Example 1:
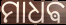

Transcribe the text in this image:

ମାଧଵ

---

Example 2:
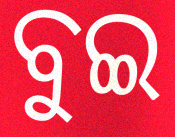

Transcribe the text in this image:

ବୁଇ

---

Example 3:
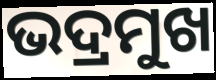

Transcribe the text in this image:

ଭଦ୍ରମୁଖ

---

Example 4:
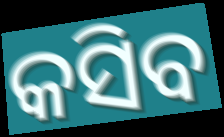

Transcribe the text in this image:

କସିବ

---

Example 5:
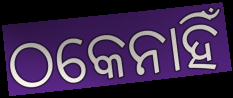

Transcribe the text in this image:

ଠକେନାହିଁ